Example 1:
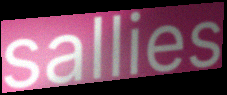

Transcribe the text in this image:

sallies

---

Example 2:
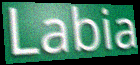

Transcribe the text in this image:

Labia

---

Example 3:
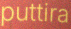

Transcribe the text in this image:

puttira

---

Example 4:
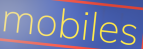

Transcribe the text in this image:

mobiles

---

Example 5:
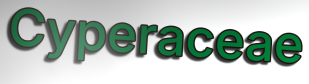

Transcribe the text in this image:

Cyperaceae